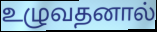
உழுவதனால்